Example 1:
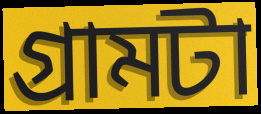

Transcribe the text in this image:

গ্রামটা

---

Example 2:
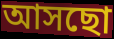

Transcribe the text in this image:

আসছো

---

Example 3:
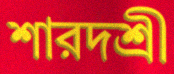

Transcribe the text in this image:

শারদশ্রী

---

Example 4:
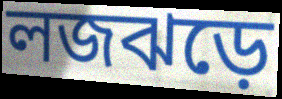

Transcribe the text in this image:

লজঝড়ে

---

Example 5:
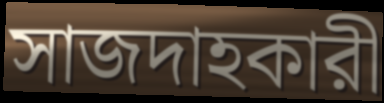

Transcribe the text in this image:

সাজদাহকারী